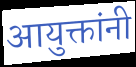
आयुक्तांनी